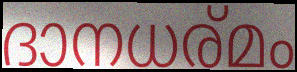
ദാനധര്മം